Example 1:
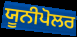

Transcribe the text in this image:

ਯੂਨੀਪੋਲਰ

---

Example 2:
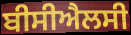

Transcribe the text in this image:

ਬੀਸੀਐਲਸੀ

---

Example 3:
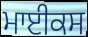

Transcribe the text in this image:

ਮਾਈਕਸ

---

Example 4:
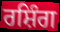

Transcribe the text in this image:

ਰਸ਼ਿੰਗ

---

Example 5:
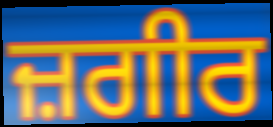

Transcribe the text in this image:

ਜ਼ਗੀਰ